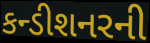
કન્ડીશનરની